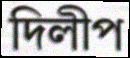
দিলীপ